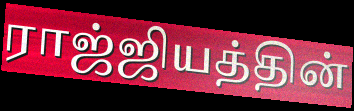
ராஜ்ஜியத்தின்